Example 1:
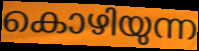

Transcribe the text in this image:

കൊഴിയുന്ന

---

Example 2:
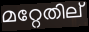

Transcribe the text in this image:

മറ്റേതില്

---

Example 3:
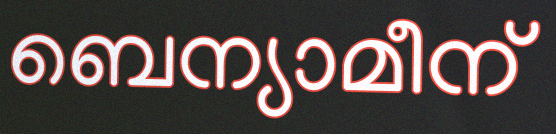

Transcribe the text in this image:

ബെന്യാമീന്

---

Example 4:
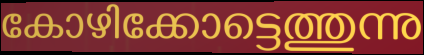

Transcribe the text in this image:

കോഴിക്കോട്ടെത്തുന്നു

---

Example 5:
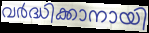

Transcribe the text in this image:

വർദ്ധിക്കാനായി